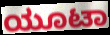
ಯೂಟಾ